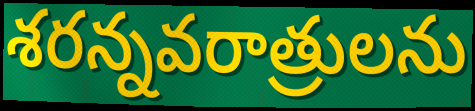
శరన్నవరాత్రులను